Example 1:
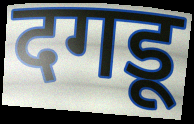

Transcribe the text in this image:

दगडू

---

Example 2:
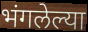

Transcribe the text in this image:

भंगलेल्या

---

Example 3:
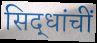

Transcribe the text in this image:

सिद्धांचीं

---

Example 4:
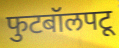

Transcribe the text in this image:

फुटबॉलपटू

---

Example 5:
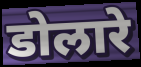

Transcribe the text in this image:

डोलारे